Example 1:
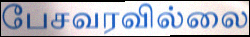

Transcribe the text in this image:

பேசவரவில்லை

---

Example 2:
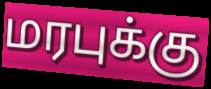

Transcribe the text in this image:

மரபுக்கு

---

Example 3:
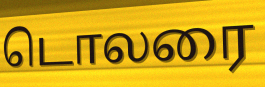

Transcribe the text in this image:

டொலரை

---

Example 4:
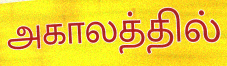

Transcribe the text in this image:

அகாலத்தில்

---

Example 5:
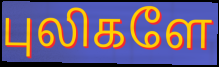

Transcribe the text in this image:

புலிகளே